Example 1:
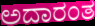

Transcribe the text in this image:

ಅದಾರಂತ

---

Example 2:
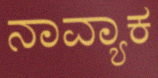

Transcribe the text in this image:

ನಾವ್ಯಾಕ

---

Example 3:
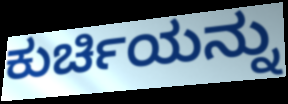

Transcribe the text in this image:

ಕುರ್ಚಿಯನ್ನು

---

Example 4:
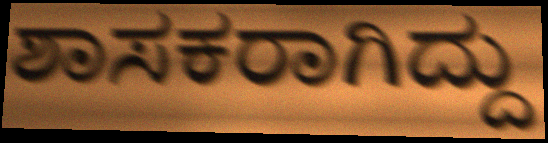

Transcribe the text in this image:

ಶಾಸಕರಾಗಿದ್ದು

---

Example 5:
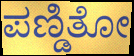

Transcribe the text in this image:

ಪಣ್ಡಿತೋ